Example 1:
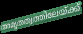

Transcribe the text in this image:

അമൃതത്വത്തിലേയ്ക്ക്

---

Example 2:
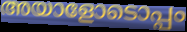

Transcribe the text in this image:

അയാളോടൊപ്പം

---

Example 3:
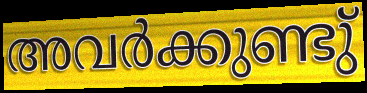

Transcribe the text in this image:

അവർക്കുണ്ടു്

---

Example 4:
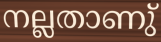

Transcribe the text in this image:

നല്ലതാണു്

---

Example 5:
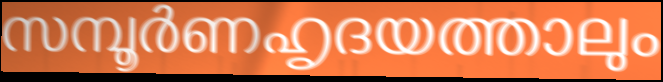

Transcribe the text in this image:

സമ്പൂർണഹൃദയത്താലും